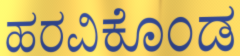
ಹರವಿಕೊಂಡ